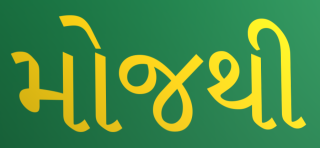
મોજથી